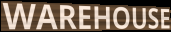
WAREHOUSE